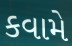
કવામે